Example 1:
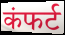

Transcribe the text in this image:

कंफर्ट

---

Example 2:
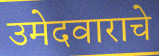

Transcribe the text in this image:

उमेदवाराचे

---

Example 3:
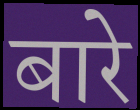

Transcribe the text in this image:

बारे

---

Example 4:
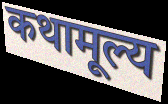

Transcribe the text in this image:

कथामूल्य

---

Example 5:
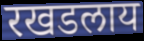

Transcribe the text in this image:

रखडलाय